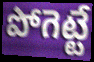
పోగెట్టే